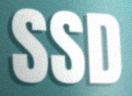
SSD